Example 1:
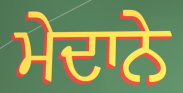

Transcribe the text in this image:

ਮੇਦਾਨੇ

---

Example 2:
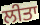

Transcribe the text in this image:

ਲੀਤਾ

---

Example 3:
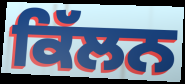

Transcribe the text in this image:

ਕਿੱਲਨ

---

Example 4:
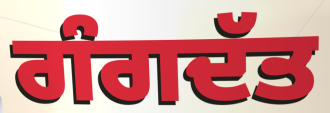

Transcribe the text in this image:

ਗੰਗਦੱਤ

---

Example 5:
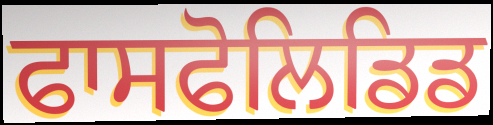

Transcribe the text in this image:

ਫਾਸਫੋਲਿਡਿਡ